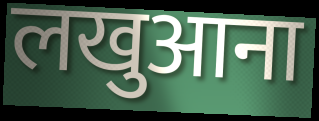
लखुआना